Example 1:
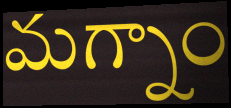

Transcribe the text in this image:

మగ్నాం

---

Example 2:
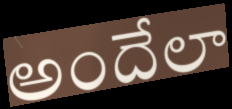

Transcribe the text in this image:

అందేలా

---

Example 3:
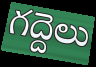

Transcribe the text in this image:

గద్దెలు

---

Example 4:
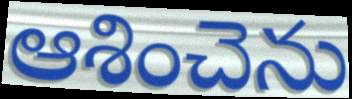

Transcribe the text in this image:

ఆశించెను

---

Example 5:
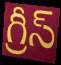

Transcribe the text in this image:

గ్రీస్